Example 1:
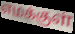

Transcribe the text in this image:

எமக்குள்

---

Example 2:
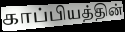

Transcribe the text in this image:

காப்பியத்தின்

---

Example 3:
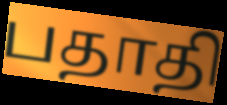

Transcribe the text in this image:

பதாதி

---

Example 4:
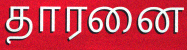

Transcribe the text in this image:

தாரனை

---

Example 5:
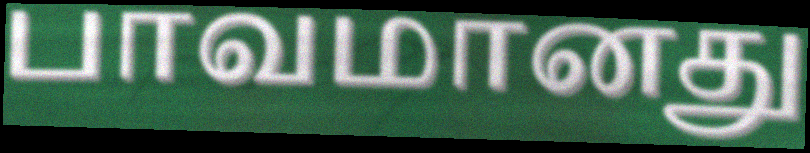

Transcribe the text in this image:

பாவமானது